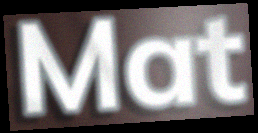
Mat